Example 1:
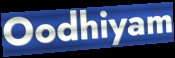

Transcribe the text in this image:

Oodhiyam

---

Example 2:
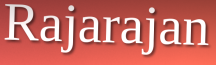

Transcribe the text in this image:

Rajarajan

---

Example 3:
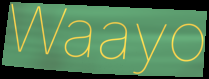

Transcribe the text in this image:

Waayo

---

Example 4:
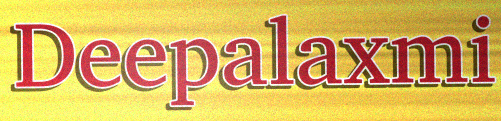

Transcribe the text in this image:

Deepalaxmi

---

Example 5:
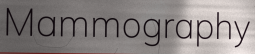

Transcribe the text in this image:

Mammography